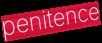
penitence